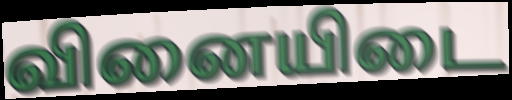
வினையிடை